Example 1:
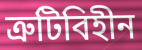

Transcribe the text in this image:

ত্রুটিবিহীন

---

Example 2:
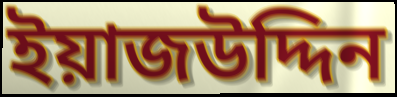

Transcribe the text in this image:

ইয়াজউদ্দিন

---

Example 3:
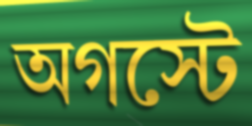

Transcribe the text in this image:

অগস্টে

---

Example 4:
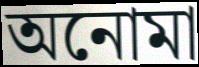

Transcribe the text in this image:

অনোমা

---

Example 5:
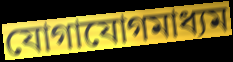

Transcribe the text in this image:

যোগাযোগমাধ্যম